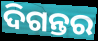
ଦିଗନ୍ତର